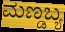
ಮಣ್ಡಬ್ಯ